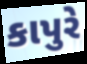
કાપુરે